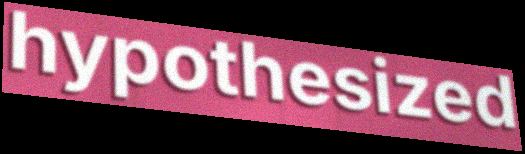
hypothesized